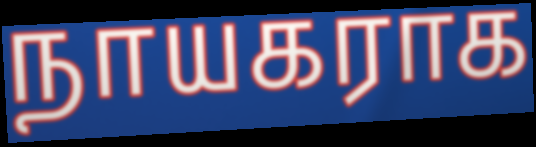
நாயகராக